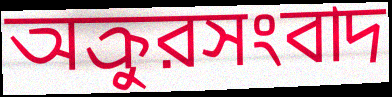
অক্রুরসংবাদ